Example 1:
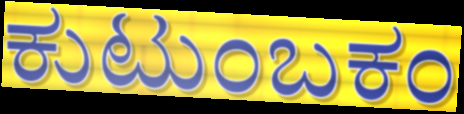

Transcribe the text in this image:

ಕುಟುಂಬಕಂ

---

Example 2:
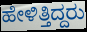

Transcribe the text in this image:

ಹೇಳಿತ್ತಿದ್ದರು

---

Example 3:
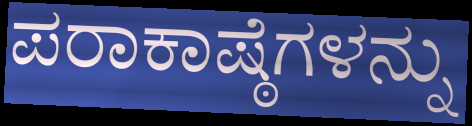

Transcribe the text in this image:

ಪರಾಕಾಷ್ಠೆಗಳನ್ನು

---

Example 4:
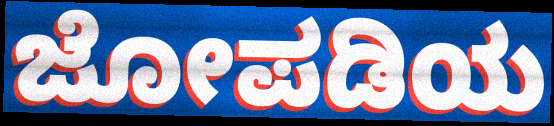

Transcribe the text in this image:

ಜೋಪಡಿಯ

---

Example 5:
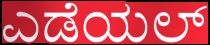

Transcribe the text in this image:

ಎಡೆಯಲ್